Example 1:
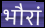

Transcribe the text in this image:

भौरां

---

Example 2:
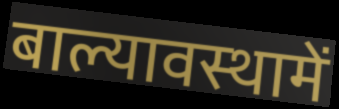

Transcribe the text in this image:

बाल्यावस्थामें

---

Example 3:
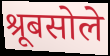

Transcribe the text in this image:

श्रूबसोले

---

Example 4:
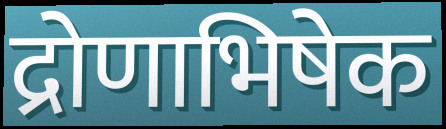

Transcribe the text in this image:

द्रोणाभिषेक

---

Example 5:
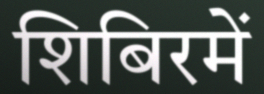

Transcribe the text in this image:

शिबिरमें